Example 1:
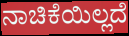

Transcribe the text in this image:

ನಾಚಿಕೆಯಿಲ್ಲದೆ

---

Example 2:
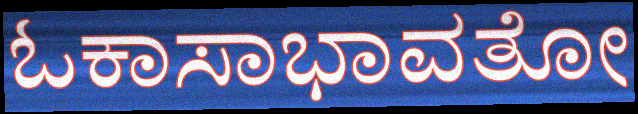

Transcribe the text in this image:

ಓಕಾಸಾಭಾವತೋ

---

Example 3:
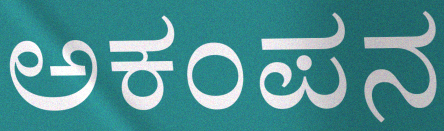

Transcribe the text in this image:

ಅಕಂಪನ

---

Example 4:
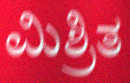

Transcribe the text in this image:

ಮಿಶ್ರಿತ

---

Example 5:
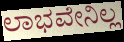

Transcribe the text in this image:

ಲಾಭವೇನಿಲ್ಲ